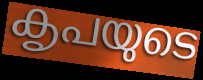
കൃപയുടെ